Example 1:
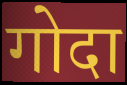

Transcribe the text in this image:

गोदा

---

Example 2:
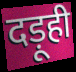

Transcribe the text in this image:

दड़ूही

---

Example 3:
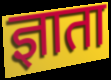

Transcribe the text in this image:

ज्ञाता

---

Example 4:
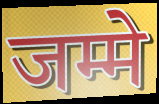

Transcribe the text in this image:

जम्मे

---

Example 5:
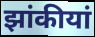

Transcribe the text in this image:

झांकीयां